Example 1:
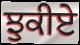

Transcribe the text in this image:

ਝੁਕੀਏ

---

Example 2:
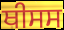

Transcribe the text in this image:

ਥੀਸਸ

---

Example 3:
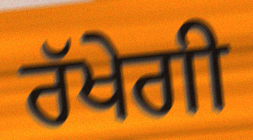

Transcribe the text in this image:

ਰੱਖੇਗੀ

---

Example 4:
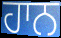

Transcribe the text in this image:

ਹਾਨ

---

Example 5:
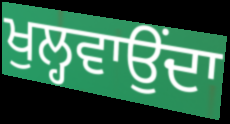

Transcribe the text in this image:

ਖੁਲ੍ਹਵਾਉਂਦਾ